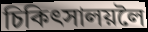
চিকিৎসালয়লৈ